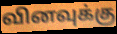
வினவுக்கு